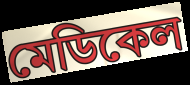
মেডিকেল